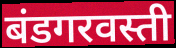
बंडगरवस्ती